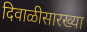
दिवाळीसारख्या